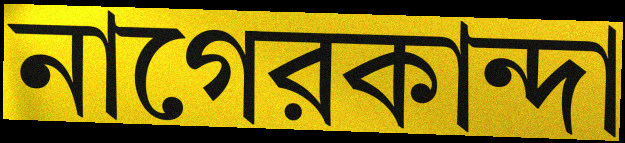
নাগেরকান্দা